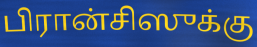
பிரான்சிஸுக்கு